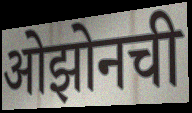
ओझोनची